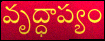
వృద్ధాప్యం